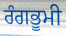
ਰੰਗਭੂਮੀ